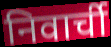
निवार्ची